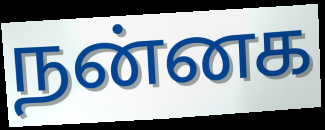
நன்னக